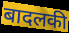
बादलकी